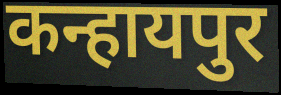
कन्हायपुर